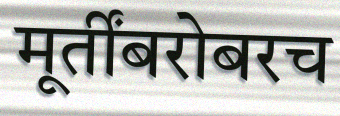
मूर्तींबरोबरच